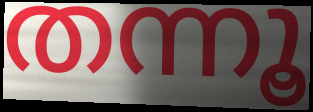
തന്നൂ